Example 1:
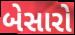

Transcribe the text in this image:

બેસારો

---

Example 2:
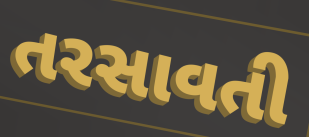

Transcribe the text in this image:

તરસાવતી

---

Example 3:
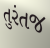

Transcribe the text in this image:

તુરંતજ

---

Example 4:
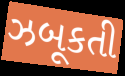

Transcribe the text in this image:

ઝબૂકતી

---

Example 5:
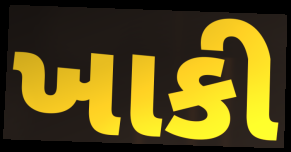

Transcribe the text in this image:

ખાકી